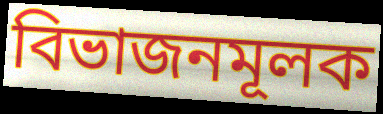
বিভাজনমূলক